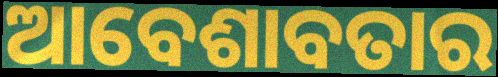
ଆବେଶାବତାର